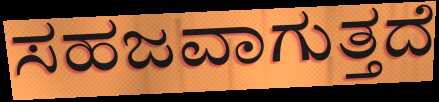
ಸಹಜವಾಗುತ್ತದೆ